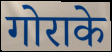
गोराके